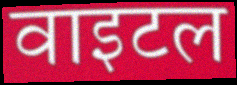
वाइटल